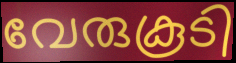
വേരുകൂടി